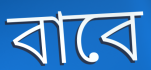
বাবে